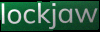
lockjaw